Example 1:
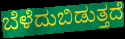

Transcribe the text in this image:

ಬೆಳೆದುಬಿಡುತ್ತದೆ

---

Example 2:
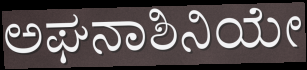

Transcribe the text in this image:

ಅಘನಾಶಿನಿಯೇ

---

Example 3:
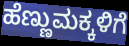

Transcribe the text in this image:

ಹೆಣ್ಣುಮಕ್ಕಳಿಗೆ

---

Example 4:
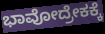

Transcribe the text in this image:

ಭಾವೋದ್ರೇಕಕ್ಕೆ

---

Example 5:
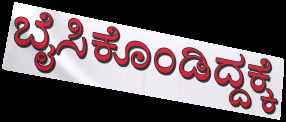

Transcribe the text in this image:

ಬೈಸಿಕೊಂಡಿದ್ದಕ್ಕೆ